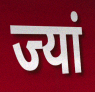
ज्यां